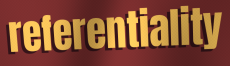
referentiality